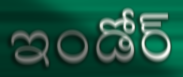
ఇండోర్